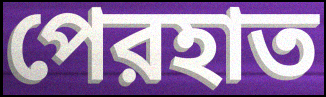
পেরহাত